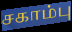
சகாம்பு